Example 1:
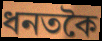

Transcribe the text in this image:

ধনতকৈ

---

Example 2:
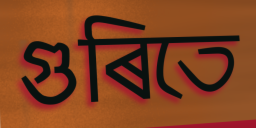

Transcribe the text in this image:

গুৰিতে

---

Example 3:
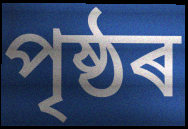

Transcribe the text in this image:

পৃষ্ঠৰ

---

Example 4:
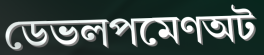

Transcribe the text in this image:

ডেভলপমেণঅট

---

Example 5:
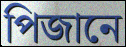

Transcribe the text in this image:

পিজানে